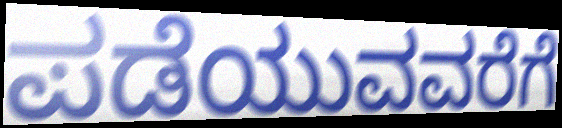
ಪಡೆಯುವವರೆಗೆ